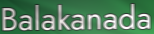
Balakanada